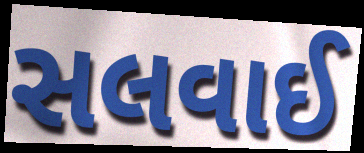
સલવાઈ